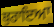
ਥੁਰਾਇਆ